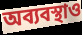
অব্যবস্থাও